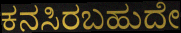
ಕನಸಿರಬಹುದೇ